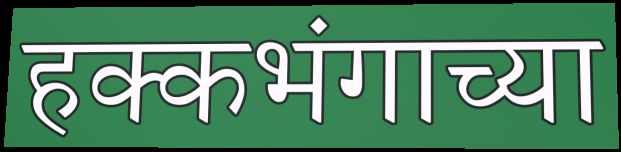
हक्कभंगाच्या